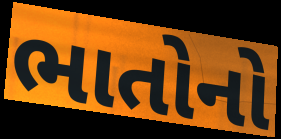
ભાતોનો